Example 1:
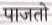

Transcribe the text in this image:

पाजतो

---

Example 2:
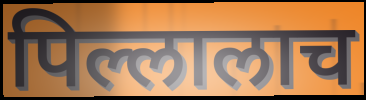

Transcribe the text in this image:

पिल्लालाच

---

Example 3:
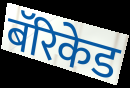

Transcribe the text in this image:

बॅरिकेड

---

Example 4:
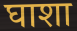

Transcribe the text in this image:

घाशा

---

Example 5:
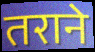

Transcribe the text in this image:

तराने